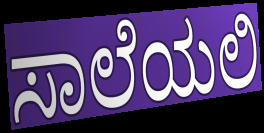
ಸಾಲೆಯಲಿ